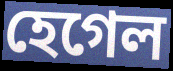
হেগেল